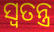
ସ୍ୱତନ୍ତ୍ର